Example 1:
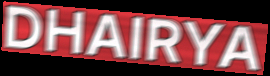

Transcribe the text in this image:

DHAIRYA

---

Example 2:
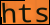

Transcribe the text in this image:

hts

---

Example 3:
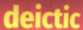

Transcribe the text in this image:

deictic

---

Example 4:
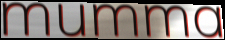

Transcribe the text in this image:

mumma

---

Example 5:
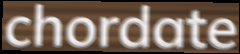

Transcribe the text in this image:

chordate